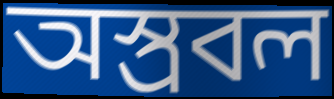
অস্ত্রবল